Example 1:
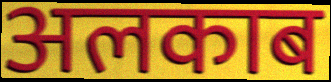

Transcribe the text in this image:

अलकाब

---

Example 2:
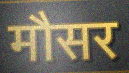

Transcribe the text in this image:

मौसर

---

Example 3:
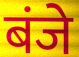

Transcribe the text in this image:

बंजे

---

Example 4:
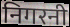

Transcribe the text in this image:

निगरनी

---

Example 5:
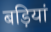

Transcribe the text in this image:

बड़ियां